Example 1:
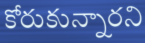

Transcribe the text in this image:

కోరుకున్నారని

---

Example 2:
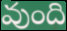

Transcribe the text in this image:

వుంది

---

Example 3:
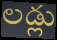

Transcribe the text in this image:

లడ్లు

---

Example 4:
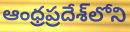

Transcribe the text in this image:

ఆంధ్రప్రదేశ్‌లోని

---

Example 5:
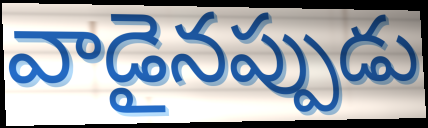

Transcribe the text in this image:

వాడైనప్పుడు